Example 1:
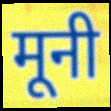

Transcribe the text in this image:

मूनी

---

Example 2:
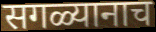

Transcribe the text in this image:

सगळ्यानाच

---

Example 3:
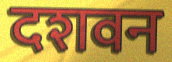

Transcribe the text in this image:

दशवन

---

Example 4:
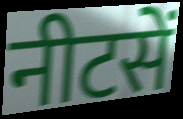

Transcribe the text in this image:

नीटसें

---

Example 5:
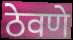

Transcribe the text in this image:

ठेवणे